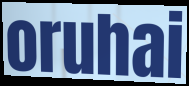
oruhai